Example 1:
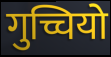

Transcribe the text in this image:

गुच्चियो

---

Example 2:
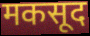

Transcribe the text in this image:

मकसूद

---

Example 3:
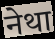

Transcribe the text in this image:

नेथा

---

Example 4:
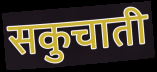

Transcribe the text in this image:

सकुचाती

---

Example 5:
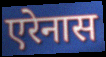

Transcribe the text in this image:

एरेनास